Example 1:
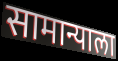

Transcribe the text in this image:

सामान्याला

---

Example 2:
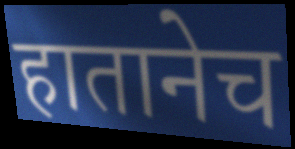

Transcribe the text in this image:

हातानेच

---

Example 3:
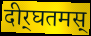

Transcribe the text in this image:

दीर्घतमस्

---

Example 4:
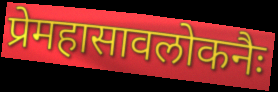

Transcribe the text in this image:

प्रेमहासावलोकनैः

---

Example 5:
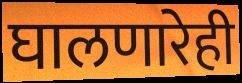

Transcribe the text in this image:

घालणारेही